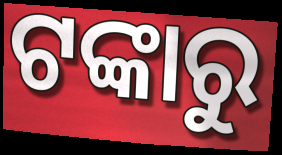
ଟଙ୍କାରୁ